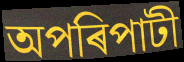
অপৰিপাটী